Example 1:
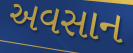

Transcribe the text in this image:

અવસાન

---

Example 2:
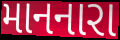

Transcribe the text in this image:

માનનારા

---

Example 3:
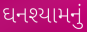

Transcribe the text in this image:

ઘનશ્યામનું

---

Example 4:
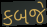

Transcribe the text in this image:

કબજે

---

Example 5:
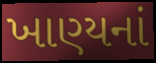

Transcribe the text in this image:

ખાણ્યનાં